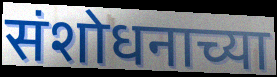
संशोधनाच्या